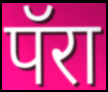
पॅरा